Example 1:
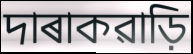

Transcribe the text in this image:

দাৰাকৱাড়ি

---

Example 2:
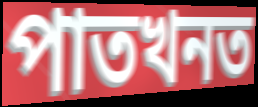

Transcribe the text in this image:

পাতখনত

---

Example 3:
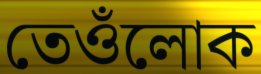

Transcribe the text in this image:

তেওঁলোক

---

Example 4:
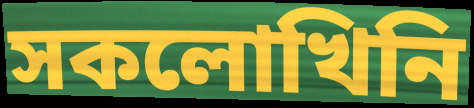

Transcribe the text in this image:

সকলোখিনি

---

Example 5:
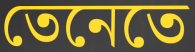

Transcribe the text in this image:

তেনেতে